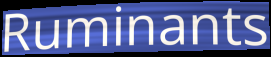
Ruminants